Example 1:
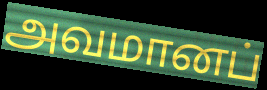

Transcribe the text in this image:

அவமானப்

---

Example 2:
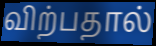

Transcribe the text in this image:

விற்பதால்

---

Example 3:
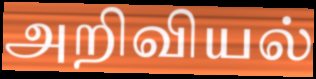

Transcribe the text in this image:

அறிவியல்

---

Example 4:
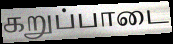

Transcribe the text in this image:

கறுப்பாடை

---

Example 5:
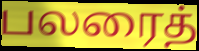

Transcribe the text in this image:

பலரைத்